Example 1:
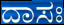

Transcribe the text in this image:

ದಾಸಃ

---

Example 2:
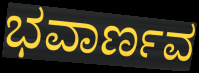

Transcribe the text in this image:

ಭವಾರ್ಣವ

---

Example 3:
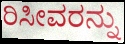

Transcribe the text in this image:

ರಿಸೀವರನ್ನು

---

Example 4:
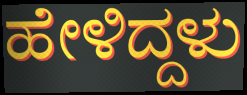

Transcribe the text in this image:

ಹೇಳಿದ್ದಳು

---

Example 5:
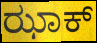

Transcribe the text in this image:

ಝಾಕ್